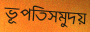
ভূপতিসমুদয়